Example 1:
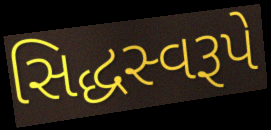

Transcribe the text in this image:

સિદ્ધસ્વરૂપે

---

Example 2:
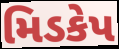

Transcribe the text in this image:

મિડકેપ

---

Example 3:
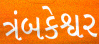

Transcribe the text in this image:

ત્રંબકેશ્વર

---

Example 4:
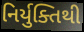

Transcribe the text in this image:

નિર્યુક્તિથી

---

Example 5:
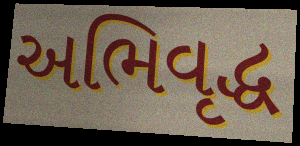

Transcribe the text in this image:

અભિવૃદ્ધ